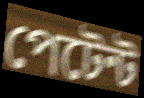
পেটেন্ট